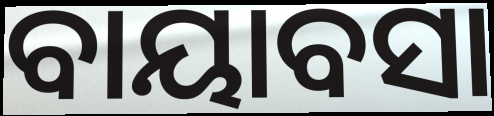
ବାୟାବସା